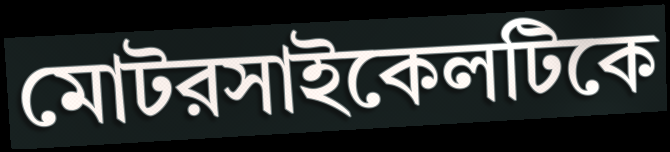
মোটরসাইকেলটিকে